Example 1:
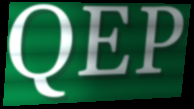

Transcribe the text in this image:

QEP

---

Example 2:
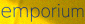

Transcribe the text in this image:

emporium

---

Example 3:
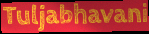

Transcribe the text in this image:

Tuljabhavani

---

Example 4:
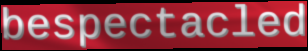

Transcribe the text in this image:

bespectacled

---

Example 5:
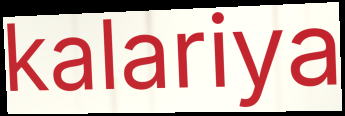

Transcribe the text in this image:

kalariya